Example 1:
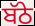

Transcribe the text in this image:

ਬੱਠੇ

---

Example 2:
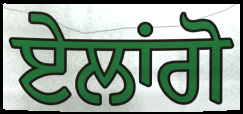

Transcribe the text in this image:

ਏਲਾਂਗੋ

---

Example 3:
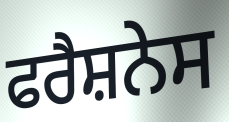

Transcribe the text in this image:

ਫਰੈਸ਼ਨੇਸ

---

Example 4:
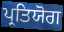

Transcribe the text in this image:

ਪ੍ਰਤਿਯੋਗ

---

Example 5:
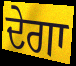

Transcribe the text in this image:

ਦੇਗਾ